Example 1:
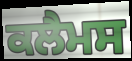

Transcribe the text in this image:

ਕਲੈਮਸ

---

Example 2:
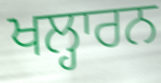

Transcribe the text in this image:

ਖਲ੍ਹਾਰਨ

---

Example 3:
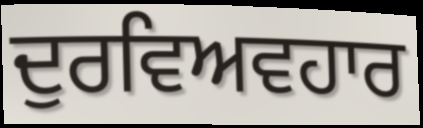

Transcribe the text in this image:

ਦੁਰਵਿਅਵਹਾਰ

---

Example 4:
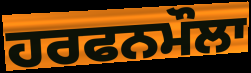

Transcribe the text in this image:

ਹਰਫਨਮੌਲਾ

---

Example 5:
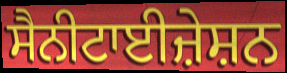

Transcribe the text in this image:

ਸੈਨੀਟਾਈਜ਼ੇਸ਼ਨ